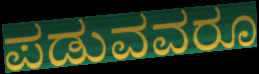
ಪಡುವವರೂ